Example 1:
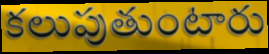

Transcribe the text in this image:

కలుపుతుంటారు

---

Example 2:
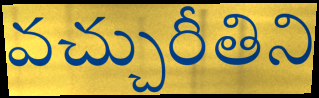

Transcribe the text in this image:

వచ్చురీతిని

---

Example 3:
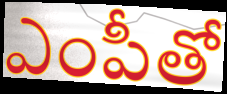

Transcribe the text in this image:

ఎంపీతో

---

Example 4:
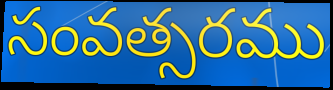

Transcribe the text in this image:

సంవత్సరము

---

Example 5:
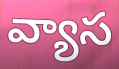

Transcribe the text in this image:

వ్యాస